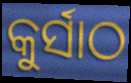
କୁର୍ସାଠ